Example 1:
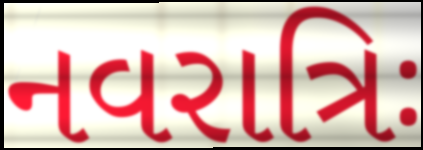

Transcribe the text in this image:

નવરાત્રિઃ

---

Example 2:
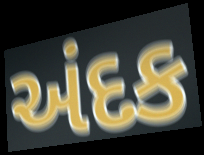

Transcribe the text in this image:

અંદક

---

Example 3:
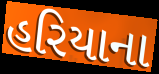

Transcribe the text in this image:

હરિયાના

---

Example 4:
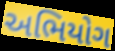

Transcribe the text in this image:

અભિયોગ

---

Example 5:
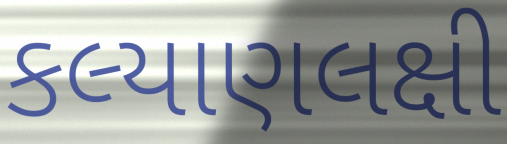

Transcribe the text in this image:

કલ્યાણલક્ષી